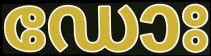
ഡോഃ